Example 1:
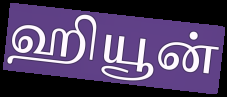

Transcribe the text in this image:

ஹியூன்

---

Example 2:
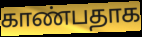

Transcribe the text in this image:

காண்பதாக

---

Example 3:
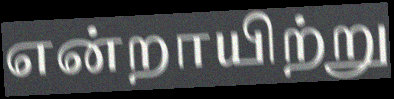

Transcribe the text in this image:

என்றாயிற்று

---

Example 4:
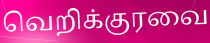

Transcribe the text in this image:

வெறிக்குரவை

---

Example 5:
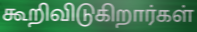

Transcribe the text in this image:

கூறிவிடுகிறார்கள்